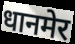
धानमेर